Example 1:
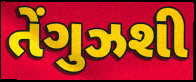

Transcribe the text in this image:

તેંગુઝશી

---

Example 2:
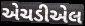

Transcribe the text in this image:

એચડીએલ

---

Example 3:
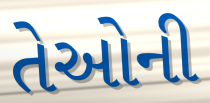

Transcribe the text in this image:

તેઓની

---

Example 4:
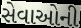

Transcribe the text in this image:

સેવાઓની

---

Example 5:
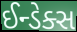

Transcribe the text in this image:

ઈન્ડેક્સ